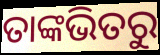
ତାଙ୍କଭିତରୁ